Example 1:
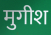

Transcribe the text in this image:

मुगीश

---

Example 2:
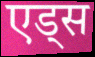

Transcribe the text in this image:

एड्स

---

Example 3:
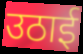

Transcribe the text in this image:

उठाई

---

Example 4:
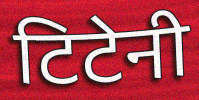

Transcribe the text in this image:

टिटेनी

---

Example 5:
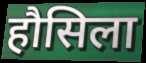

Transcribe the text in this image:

हौसिला